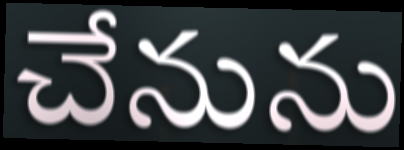
చేనును